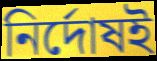
নির্দোষই